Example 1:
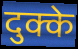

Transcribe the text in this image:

दुक्के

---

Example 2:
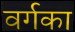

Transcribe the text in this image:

वर्गका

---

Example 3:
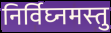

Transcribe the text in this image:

निर्विघ्नमस्तु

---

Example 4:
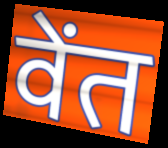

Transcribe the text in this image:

वेंत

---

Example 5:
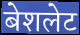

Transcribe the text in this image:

बेशलेट